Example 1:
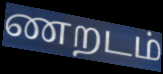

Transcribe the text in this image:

ணறடம்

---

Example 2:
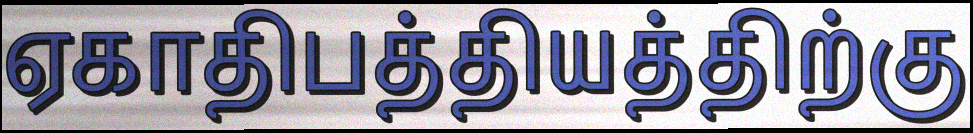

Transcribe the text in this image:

ஏகாதிபத்தியத்திற்கு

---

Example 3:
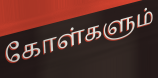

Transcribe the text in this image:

கோள்களும்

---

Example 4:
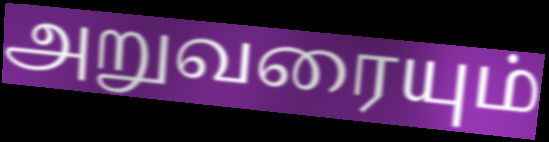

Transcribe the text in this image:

அறுவரையும்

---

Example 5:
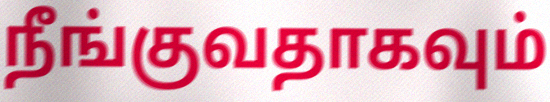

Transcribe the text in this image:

நீங்குவதாகவும்